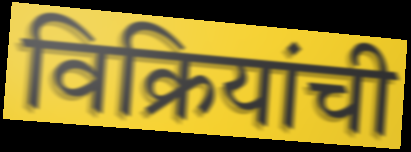
विक्रियांची